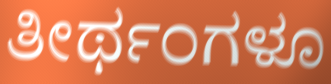
ತೀರ್ಥಂಗಳೂ